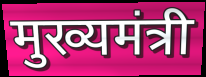
मुख्यमंत्री